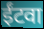
ईंटवा